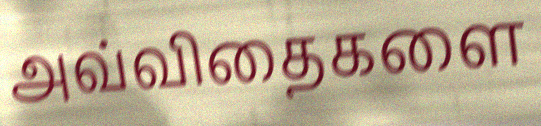
அவ்விதைகளை